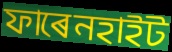
ফাৰেনহাইট